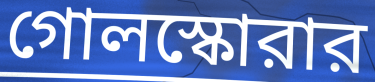
গোলস্কোরার